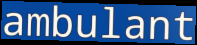
ambulant